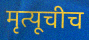
मृत्यूचीच